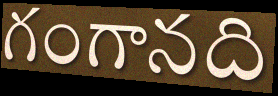
గంగానది